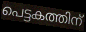
പെട്ടകത്തിന്